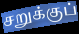
சறுக்குப்